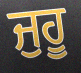
ਜੁਹੂ